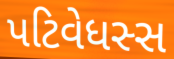
પટિવેધસ્સ